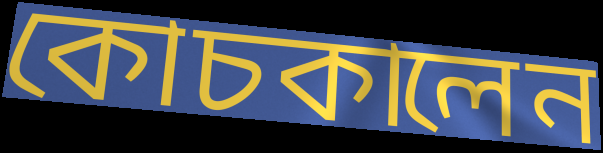
কোচকালেন